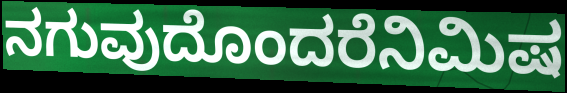
ನಗುವುದೊಂದರೆನಿಮಿಷ